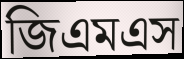
জিএমএস